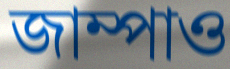
জাম্পাও